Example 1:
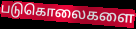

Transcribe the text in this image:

படுகொலைகளை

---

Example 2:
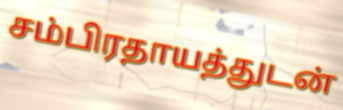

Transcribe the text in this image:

சம்பிரதாயத்துடன்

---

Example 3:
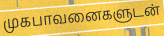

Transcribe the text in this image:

முகபாவனைகளுடன்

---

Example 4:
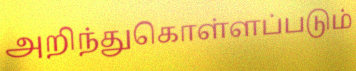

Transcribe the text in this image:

அறிந்துகொள்ளப்படும்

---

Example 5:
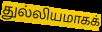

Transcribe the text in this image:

துல்லியமாகக்